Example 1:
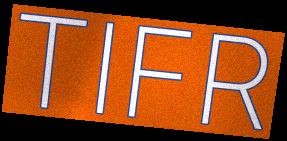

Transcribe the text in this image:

TIFR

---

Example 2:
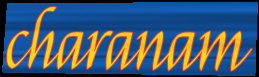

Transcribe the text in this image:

charanam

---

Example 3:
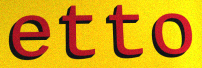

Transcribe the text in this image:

etto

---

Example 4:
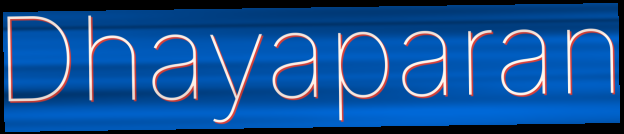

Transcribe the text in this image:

Dhayaparan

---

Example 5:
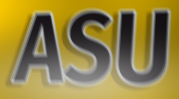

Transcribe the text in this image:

ASU